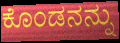
ಕೊಂಡನನ್ನು